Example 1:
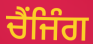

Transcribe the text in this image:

ਚੈਂਜਿੰਗ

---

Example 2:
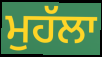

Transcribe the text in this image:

ਮੁਹੱਲਾ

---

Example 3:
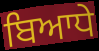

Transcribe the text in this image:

ਬਿਆਧੇ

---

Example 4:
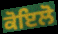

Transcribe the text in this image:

ਕੋਇਲੋ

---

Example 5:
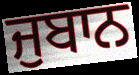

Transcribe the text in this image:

ਜੁਬਾਨ